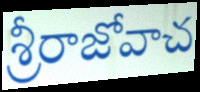
శ్రీరాజోవాచ